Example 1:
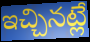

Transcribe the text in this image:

ఇచ్చినట్లే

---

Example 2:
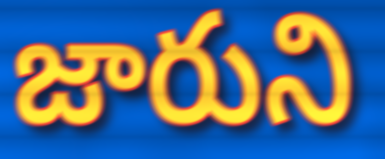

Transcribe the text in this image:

జారుని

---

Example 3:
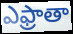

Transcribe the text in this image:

ఎఫ్రాతా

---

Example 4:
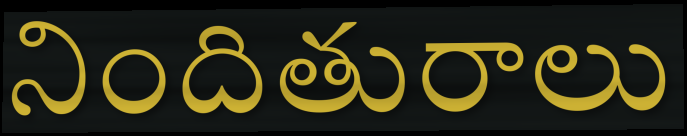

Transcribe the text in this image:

నిందితురాలు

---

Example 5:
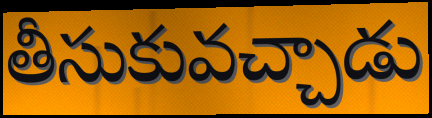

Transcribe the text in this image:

తీసుకువచ్చాడు